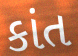
કાંત